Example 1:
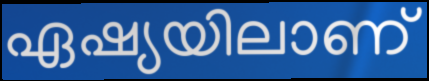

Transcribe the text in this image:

ഏഷ്യയിലാണ്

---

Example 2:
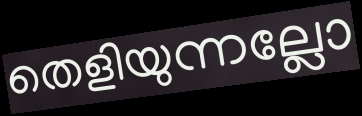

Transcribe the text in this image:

തെളിയുന്നല്ലോ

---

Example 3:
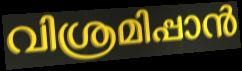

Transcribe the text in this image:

വിശ്രമിപ്പാൻ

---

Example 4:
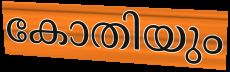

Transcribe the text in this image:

കോതിയും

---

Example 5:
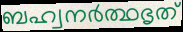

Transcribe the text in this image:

ബഹ്വനർത്ഥഭൃത്